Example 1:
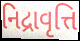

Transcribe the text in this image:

નિદ્રાવૃત્તિ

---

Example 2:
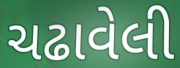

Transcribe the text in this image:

ચઢાવેલી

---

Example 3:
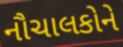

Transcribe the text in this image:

નૌચાલકોને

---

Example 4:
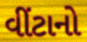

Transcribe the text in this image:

વીંટાનો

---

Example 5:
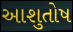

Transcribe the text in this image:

આશુતોષ